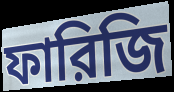
ফারিজি